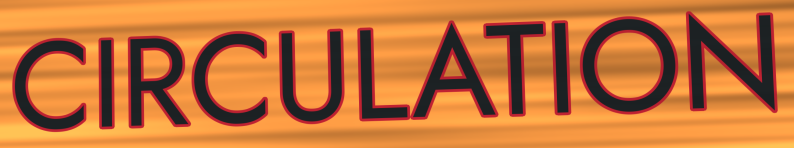
CIRCULATION